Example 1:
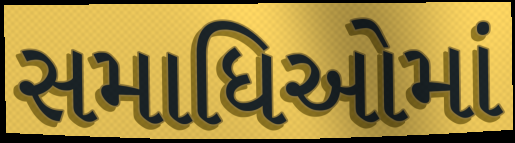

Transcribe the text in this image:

સમાધિઓમાં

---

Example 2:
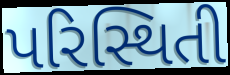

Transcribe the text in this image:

પરિસ્થિતી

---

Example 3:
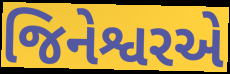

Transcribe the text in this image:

જિનેશ્વરએ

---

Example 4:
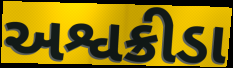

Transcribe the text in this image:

અશ્વક્રીડા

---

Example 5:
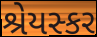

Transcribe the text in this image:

શ્રેયસ્કર